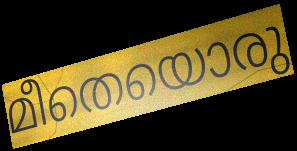
മീതെയൊരു